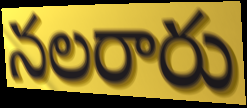
నలరారు